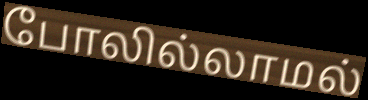
போலில்லாமல்